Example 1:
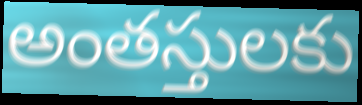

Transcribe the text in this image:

అంతస్తులకు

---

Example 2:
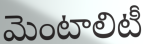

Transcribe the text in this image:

మెంటాలిటీ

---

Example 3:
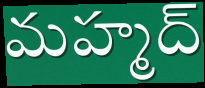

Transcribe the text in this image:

మహ్మద్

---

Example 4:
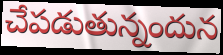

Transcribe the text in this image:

చేపడుతున్నందున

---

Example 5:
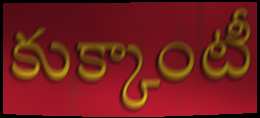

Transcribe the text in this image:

కుక్కాంటీ